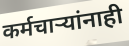
कर्मचाऱ्यांनाही